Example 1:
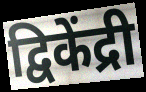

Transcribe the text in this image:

द्विकेंद्री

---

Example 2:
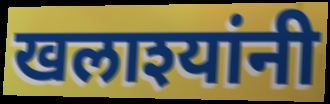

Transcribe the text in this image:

खलाश्यांनी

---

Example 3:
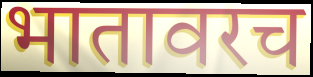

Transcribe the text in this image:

भातावरच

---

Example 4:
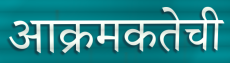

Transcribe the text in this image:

आक्रमकतेची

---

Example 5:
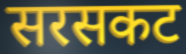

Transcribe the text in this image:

सरसकट